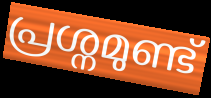
പ്രശ്നമുണ്ട്